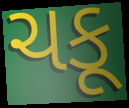
ચકૂ